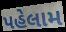
પહેલામ